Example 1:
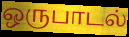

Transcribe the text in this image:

ஒருபாடல்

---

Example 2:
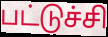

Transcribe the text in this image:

பட்டுச்சி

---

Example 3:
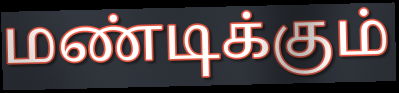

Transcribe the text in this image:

மண்டிக்கும்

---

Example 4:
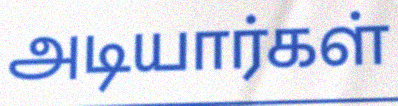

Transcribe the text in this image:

அடியார்கள்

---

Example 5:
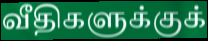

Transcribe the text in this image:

வீதிகளுக்குக்